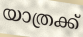
യാത്രക്ക്